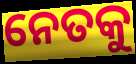
ନେତକୁ